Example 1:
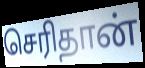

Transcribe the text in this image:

செரிதான்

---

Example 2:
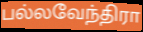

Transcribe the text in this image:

பல்லவேந்திரா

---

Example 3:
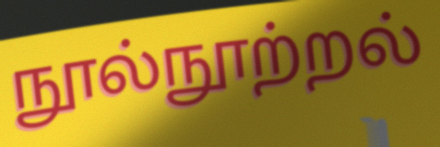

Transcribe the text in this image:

நூல்நூற்றல்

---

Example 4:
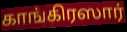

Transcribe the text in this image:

காங்கிரஸார்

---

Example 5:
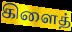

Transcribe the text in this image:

கிளைத்